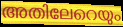
അതിലേറെയും